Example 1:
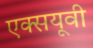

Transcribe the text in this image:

एक्सयूवी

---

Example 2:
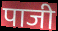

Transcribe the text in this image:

पाजी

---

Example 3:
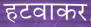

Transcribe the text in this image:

हटवाकर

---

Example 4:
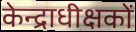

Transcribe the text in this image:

केन्द्राधीक्षकों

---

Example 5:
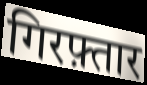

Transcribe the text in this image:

गिरफ़्तार